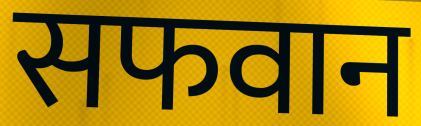
सफवान